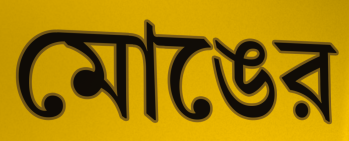
মোঙের